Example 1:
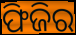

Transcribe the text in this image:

ଫିଜିର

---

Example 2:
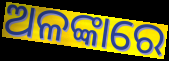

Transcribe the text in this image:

ଅଳଙ୍କାରେ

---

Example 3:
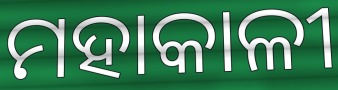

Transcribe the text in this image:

ମହାକାଳୀ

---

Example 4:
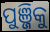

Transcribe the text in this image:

ପୁଞ୍ଜିକୁ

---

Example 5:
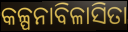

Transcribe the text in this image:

କଳ୍ପନାବିଳାସିତା